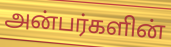
அன்பர்களின்